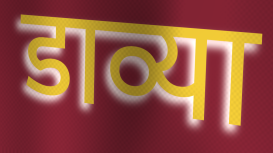
डाव्या